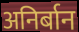
अनिर्बान